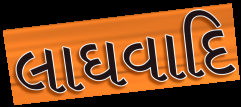
લાઘવાદિ